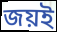
জয়ই